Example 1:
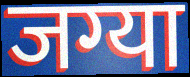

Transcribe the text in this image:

जग्या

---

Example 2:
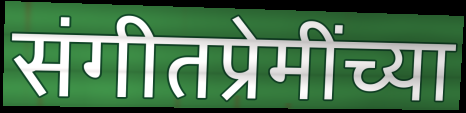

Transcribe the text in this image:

संगीतप्रेमींच्या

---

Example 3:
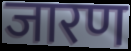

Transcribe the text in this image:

जारण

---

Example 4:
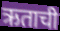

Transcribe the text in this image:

ऋताची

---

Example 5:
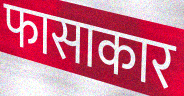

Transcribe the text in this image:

फासाकार